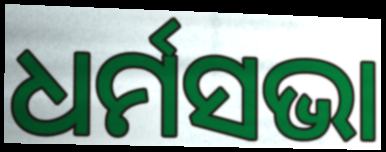
ଧର୍ମସଭା